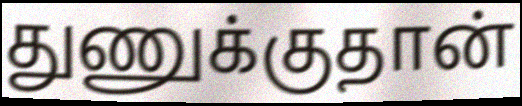
துணுக்குதான்